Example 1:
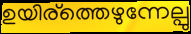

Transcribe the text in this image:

ഉയിര്ത്തെഴുന്നേല്പു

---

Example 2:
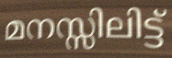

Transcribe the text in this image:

മനസ്സിലിട്ട്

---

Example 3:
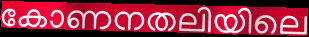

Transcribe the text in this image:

കോണനതലിയിലെ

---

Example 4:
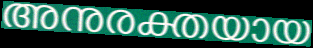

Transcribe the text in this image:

അനുരക്തയായ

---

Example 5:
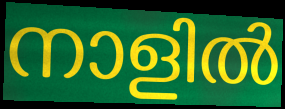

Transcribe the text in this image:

നാളിൽ